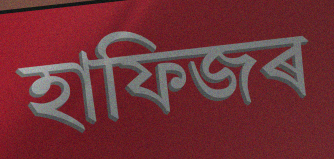
হাফিজৰ